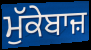
ਮੁੱਕੇਬਾਜ਼